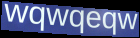
wqwqeqw